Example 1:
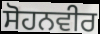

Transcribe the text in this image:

ਸੋਹਨਵੀਰ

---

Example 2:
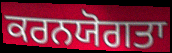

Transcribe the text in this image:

ਕਰਨਯੋਗਤਾ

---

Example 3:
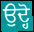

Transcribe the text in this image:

ਉਦ੍ਹੋ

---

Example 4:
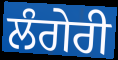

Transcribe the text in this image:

ਲੰਗੇਰੀ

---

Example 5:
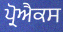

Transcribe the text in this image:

ਪ੍ਰੋਐਕਸ